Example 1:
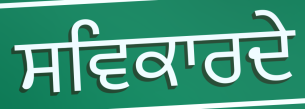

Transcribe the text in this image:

ਸਵਿਕਾਰਦੇ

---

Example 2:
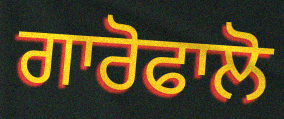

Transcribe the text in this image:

ਗਾਰੋਫਾਲੋ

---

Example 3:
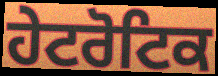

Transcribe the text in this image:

ਹੇਟਰੋਟਿਕ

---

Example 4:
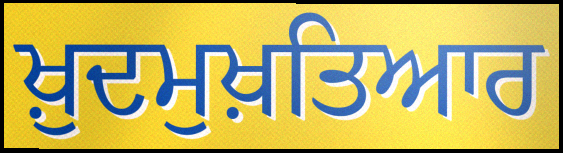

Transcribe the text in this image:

ਖ਼ੁਦਮੁਖ਼ਤਿਆਰ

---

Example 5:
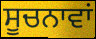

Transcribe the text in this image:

ਸੂਚਨਾਵਾਂ